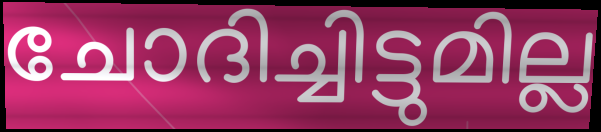
ചോദിച്ചിട്ടുമില്ല